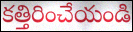
కత్తిరించేయండి